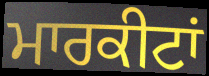
ਮਾਰਕੀਟਾਂ